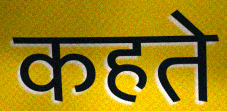
कहते